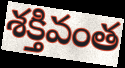
శక్తివంత